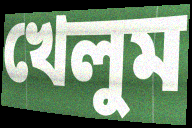
খেলুম